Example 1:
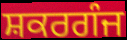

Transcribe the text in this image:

ਸ਼ਕਰਗੰਜ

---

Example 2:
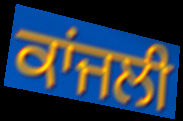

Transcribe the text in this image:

ਕਾਂਜਲੀ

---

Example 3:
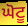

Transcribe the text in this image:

ਘੋਟੂ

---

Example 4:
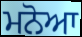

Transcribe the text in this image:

ਮਨੋਆ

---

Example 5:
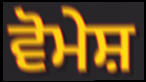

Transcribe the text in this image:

ਵੋਮੇਸ਼